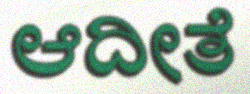
ಆದೀತೆ